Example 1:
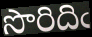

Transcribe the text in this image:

సొరిదిఁ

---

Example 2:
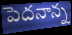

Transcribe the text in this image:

పెదనాన్న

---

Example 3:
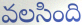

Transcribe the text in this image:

వలసింది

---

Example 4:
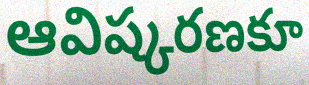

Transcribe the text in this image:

ఆవిష్కరణకూ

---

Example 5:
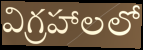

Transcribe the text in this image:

విగ్రహాలలో